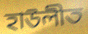
হাউলীত